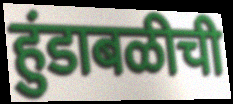
हुंडाबळीची